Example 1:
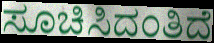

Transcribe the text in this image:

ಸೂಚಿಸಿದಂತಿದೆ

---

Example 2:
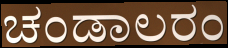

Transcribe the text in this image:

ಚಂಡಾಲರಂ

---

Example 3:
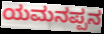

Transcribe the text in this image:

ಯಮನಪ್ಪನ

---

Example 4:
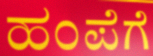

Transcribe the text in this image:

ಹಂಪೆಗೆ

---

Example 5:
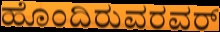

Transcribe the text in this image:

ಹೊಂದಿರುವರವರ್